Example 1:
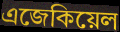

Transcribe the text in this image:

এজেকিয়েল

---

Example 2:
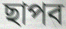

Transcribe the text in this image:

ছাপব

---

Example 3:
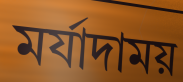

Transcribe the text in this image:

মর্যাদাময়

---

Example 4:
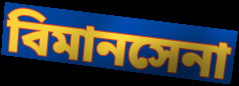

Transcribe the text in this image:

বিমানসেনা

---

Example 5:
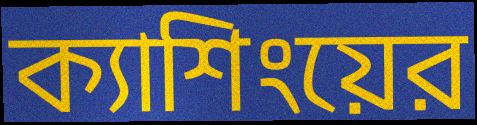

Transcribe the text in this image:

ক্যাশিংয়ের